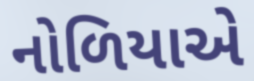
નોળિયાએ